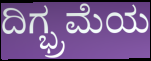
ದಿಗ್ಭ್ರಮೆಯ